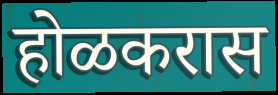
होळकरास